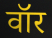
वॉर